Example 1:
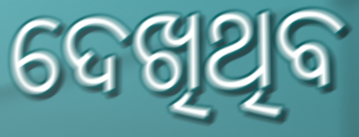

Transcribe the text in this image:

ଦେଖିଥିବ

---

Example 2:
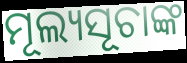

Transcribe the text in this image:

ମୂଲ୍ୟସୂଚାଙ୍କ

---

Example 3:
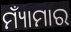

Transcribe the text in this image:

ମ୍ୟାଁମାର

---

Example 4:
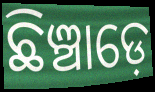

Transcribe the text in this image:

ଛିଞ୍ଚାଡ଼େ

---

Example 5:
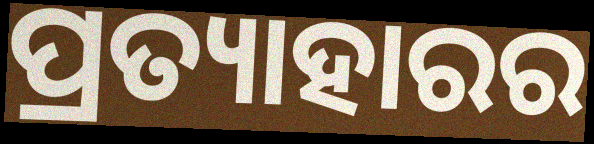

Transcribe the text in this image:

ପ୍ରତ୍ୟାହାରର